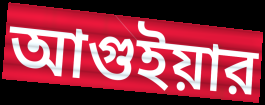
আগুইয়ার